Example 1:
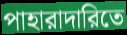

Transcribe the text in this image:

পাহারাদারিতে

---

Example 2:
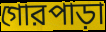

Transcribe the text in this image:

গোরপাড়া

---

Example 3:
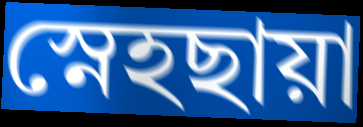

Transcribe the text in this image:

স্নেহছায়া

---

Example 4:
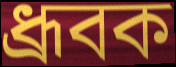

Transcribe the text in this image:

ধ্রূবক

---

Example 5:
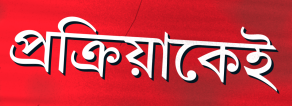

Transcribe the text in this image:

প্রক্রিয়াকেই